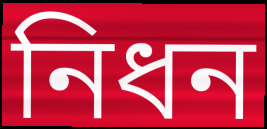
নিধন